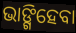
ଭାଙ୍ଗିହେବା